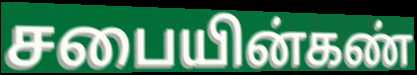
சபையின்கண்